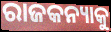
ରାଜକନ୍ୟାକୁ